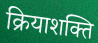
क्रियाशक्ति